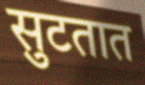
सुटतात